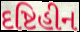
દષ્ટિહીન